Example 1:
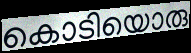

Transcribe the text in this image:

കൊടിയൊരു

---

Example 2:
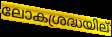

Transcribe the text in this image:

ലോകശ്രദ്ധയില്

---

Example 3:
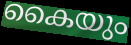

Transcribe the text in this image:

കൈയും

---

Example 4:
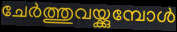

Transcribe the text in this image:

ചേർത്തുവയ്ക്കുമ്പോൾ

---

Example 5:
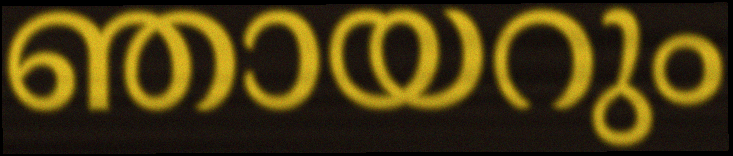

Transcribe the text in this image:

ഞായറും